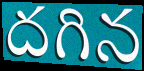
దగిన